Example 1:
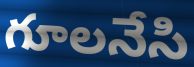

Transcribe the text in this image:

గూలనేసి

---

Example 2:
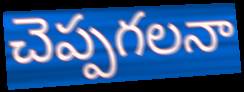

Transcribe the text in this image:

చెప్పగలనా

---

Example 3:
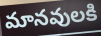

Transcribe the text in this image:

మానవులకి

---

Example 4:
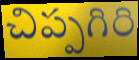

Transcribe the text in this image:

చిప్పగిరి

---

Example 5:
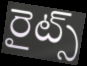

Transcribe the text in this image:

రైట్స్